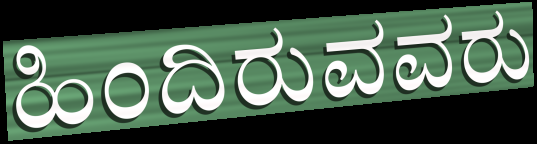
ಹಿಂದಿರುವವರು